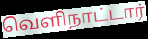
வெளிநாட்டார்